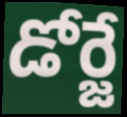
డోర్జే